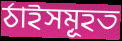
ঠাইসমূহত